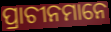
ପ୍ରାଚୀନମାନେ